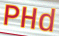
PHd